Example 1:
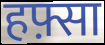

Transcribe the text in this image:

हफ़्सा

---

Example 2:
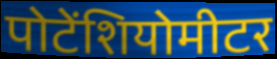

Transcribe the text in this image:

पोटेंशियोमीटर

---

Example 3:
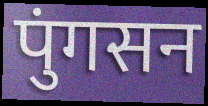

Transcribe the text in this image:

पुंगसन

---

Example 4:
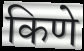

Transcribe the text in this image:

किणे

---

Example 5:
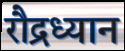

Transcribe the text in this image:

रौद्रध्यान